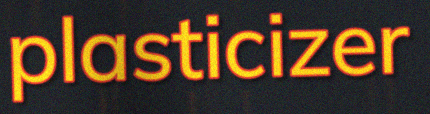
plasticizer